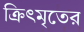
ক্রিৎমৃতের